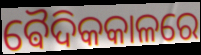
ଵୈଦିକକାଳରେ